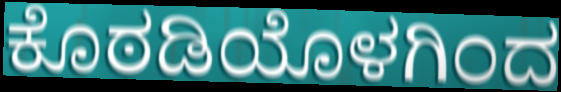
ಕೊಠಡಿಯೊಳಗಿಂದ